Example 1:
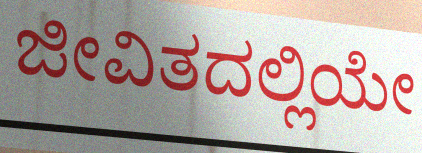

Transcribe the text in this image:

ಜೀವಿತದಲ್ಲಿಯೇ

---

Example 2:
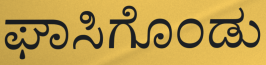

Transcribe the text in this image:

ಘಾಸಿಗೊಂಡು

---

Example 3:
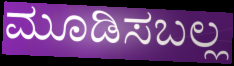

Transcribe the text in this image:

ಮೂಡಿಸಬಲ್ಲ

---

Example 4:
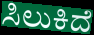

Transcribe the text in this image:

ಸಿಲುಕಿದೆ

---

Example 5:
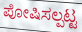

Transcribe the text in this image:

ಪೋಷಿಸಲ್ಪಟ್ಟ